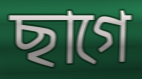
ছাগে